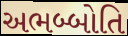
અભબ્બોતિ